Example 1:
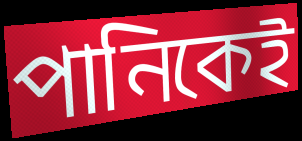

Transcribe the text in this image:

পানিকেই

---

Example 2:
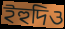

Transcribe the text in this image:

ইহুদিও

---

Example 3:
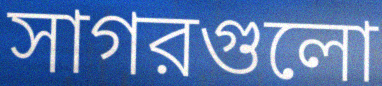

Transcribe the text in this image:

সাগরগুলো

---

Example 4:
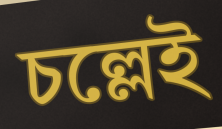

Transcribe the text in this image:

চল্লেই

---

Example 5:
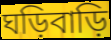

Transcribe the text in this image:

ঘড়িবাড়ি